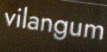
vilangum